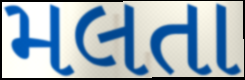
મલતા